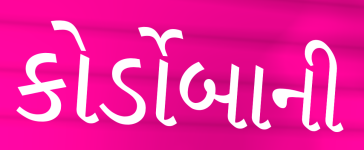
કોર્ડોબાની